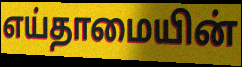
எய்தாமையின்